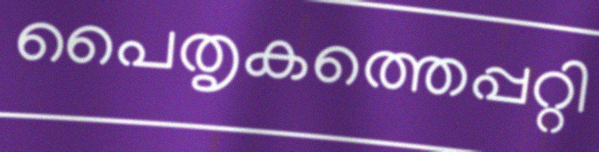
പൈതൃകത്തെപ്പറ്റി